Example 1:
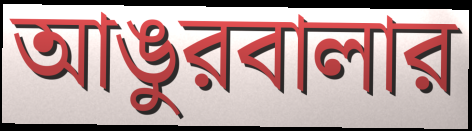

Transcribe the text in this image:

আঙুরবালার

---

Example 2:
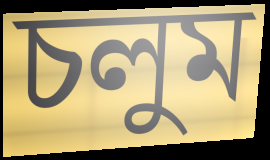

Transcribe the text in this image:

চলুম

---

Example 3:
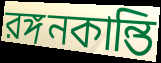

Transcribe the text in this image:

রঙ্গনকান্তি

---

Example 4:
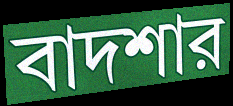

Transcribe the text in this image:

বাদশার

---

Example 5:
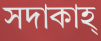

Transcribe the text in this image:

সদাকাহ্